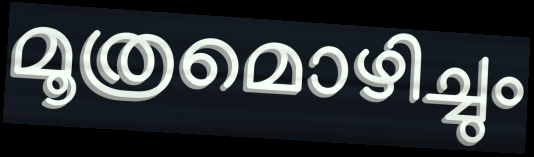
മൂത്രമൊഴിച്ചും